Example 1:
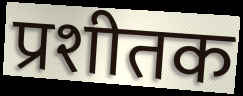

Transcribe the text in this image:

प्रशीतक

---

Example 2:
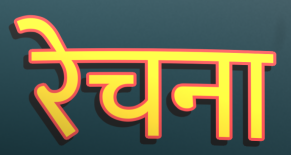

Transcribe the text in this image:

रेचना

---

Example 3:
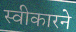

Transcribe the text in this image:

स्वीकारने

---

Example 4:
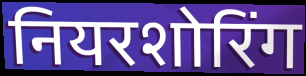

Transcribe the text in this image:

नियरशोरिंग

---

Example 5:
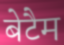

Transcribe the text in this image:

बेटैम